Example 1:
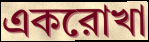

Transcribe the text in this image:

একরোখা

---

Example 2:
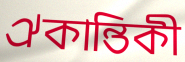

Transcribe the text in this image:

ঐকান্তিকী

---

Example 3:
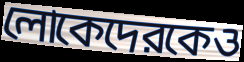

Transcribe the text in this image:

লোকেদেরকেও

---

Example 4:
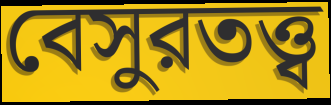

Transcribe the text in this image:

বেসুরতত্ত্ব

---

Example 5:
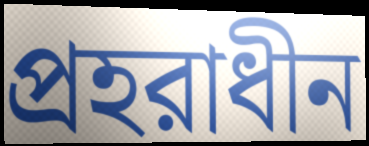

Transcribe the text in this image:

প্রহরাধীন